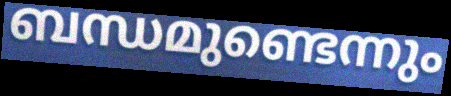
ബന്ധമുണ്ടെന്നും